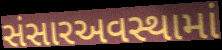
સંસારઅવસ્થામાં